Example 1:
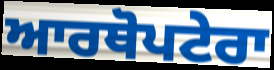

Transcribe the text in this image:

ਆਰਥੋਪਟੇਰਾ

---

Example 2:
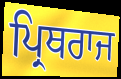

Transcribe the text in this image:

ਪ੍ਰਿਥਰਾਜ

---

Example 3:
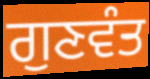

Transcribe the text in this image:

ਗੁਣਵੰਤ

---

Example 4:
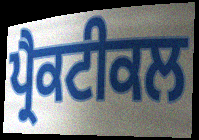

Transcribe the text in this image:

ਪ੍ਰੈਕਟੀਕਲ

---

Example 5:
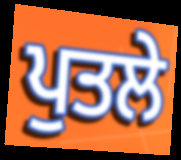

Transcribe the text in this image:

ਪੁਤਲੇ